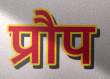
प्रौप